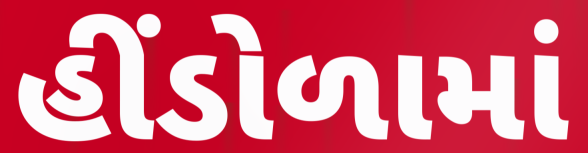
હીંડોળામાં